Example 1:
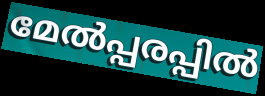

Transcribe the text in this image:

മേൽപ്പരപ്പിൽ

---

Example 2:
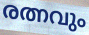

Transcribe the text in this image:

രത്നവും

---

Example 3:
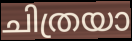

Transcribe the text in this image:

ചിത്രയാ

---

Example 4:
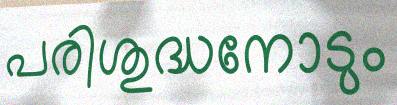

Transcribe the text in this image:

പരിശുദ്ധനോടും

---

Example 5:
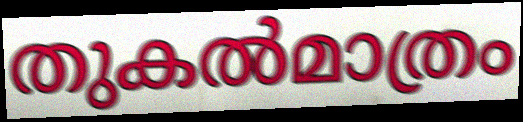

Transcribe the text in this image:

തുകൽമാത്രം